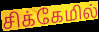
சிக்கேமில்